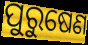
ପୁରୁଷେଣ